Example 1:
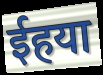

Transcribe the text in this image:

ईहया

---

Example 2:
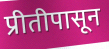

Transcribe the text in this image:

प्रीतीपासून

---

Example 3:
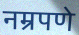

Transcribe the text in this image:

नम्रपणे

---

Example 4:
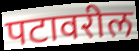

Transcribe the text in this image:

पटावरील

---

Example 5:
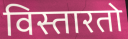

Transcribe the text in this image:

विस्तारतो